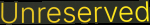
Unreserved